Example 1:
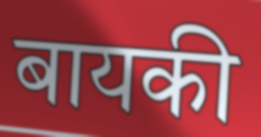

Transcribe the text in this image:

बायकी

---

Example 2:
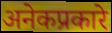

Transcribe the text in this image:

अनेकप्रकारे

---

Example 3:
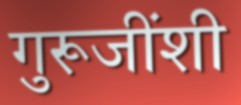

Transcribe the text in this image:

गुरूजींशी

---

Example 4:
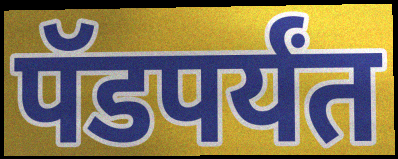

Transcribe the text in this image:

पॅडपर्यंत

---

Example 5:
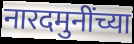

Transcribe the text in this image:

नारदमुनींच्या